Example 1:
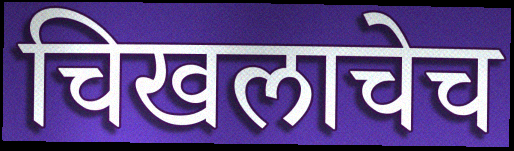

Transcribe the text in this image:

चिखलाचेच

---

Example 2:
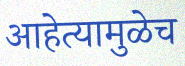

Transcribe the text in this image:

आहेत्यामुळेच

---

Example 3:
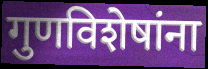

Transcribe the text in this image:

गुणविशेषांना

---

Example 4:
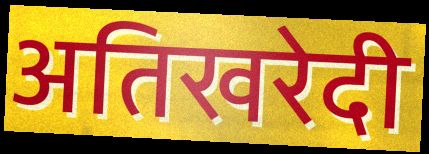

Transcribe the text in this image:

अतिखरेदी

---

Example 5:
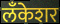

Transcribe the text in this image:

लँकेशर